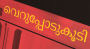
വെറുപ്പോടുകൂടി